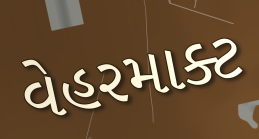
વેહરમાક્ટ